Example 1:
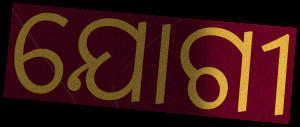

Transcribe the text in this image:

ଯୋଗୀ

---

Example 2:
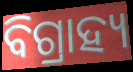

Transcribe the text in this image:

ବିଗ୍ରାହ୍ୟ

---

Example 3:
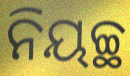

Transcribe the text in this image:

ନିୟଚ୍ଛ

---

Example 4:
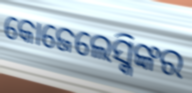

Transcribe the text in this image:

କୋଜେଲେସ୍କିଙ୍କର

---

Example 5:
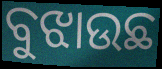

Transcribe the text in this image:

ବୁଝାଉଛ